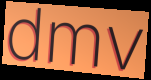
dmv